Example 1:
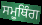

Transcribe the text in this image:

ਸਮੂਥਿੰਗ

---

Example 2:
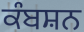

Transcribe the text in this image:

ਕੰਬਸ਼ਨ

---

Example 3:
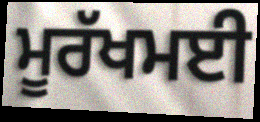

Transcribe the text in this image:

ਮੂਰੱਖਮਈ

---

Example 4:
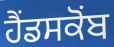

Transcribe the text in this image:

ਹੈਂਡਸਕੋਂਬ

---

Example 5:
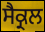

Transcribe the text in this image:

ਸੈਕ੍ਰਲ